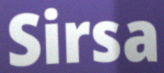
Sirsa